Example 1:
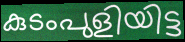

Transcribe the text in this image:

കുടംപുളിയിട്ട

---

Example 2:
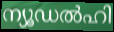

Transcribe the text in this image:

ന്യൂഡൽഹി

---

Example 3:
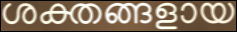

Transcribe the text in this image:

ശക്തങ്ങളായ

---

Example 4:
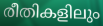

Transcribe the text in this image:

രീതികളിലും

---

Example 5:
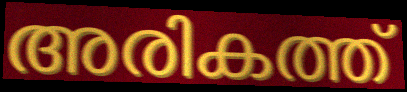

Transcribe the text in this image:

അരികത്ത്